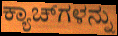
ಕ್ಯಾಚ್‌ಗಳನ್ನು